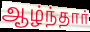
ஆழ்ந்தார்